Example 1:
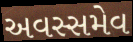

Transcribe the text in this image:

અવસ્સમેવ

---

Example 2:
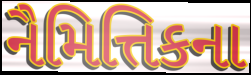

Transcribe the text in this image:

નૈમિત્તિકના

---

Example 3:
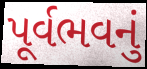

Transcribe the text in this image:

પૂર્વભવનું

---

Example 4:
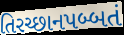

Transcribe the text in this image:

તિરચ્છાનપબ્બતં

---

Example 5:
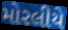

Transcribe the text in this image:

મોરલીયે